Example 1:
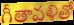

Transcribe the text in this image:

గీతావళితో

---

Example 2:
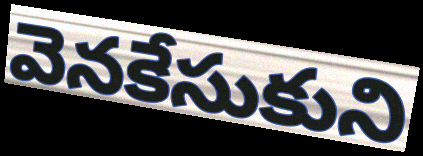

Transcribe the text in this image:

వెనకేసుకుని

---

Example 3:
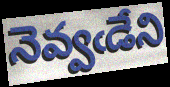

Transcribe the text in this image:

నెవ్వఁడేని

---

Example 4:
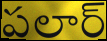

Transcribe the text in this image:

పలార్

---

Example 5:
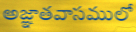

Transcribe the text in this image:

అజ్ఞాతవాసములో